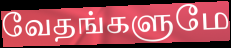
வேதங்களுமே